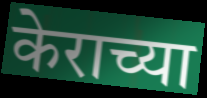
केराच्या